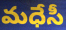
మధేసీ